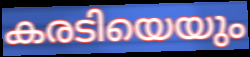
കരടിയെയും